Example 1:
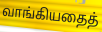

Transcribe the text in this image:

வாங்கியதைத்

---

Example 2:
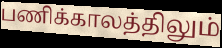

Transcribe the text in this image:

பணிக்காலத்திலும்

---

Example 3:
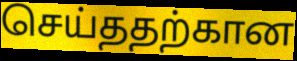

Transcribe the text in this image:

செய்ததற்கான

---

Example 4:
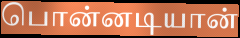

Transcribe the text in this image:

பொன்னடியான்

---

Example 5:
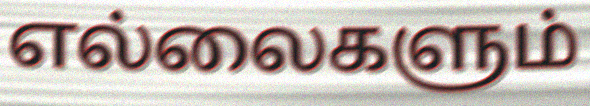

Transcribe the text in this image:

எல்லைகளும்